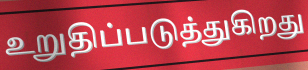
உறுதிப்படுத்துகிறது